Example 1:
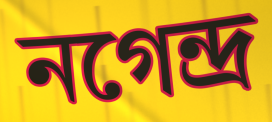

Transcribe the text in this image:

নগেন্দ্র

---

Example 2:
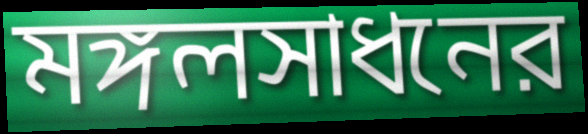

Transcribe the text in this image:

মঙ্গলসাধনের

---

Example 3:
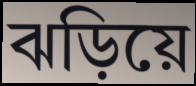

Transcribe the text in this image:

ঝড়িয়ে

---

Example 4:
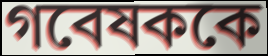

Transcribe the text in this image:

গবেষককে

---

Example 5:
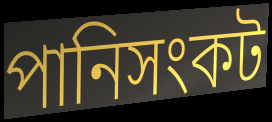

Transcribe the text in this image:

পানিসংকট